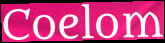
Coelom